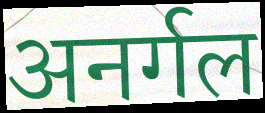
अनर्गल